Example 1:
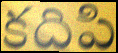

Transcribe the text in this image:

కదిపి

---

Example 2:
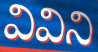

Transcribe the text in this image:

వివిని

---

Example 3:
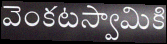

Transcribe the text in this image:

వెంకటస్వామికి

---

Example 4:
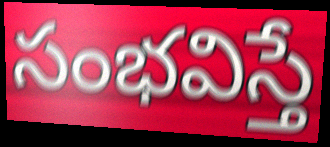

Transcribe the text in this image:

సంభవిస్తే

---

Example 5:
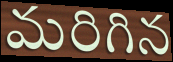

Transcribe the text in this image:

మరిగిన